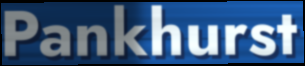
Pankhurst